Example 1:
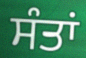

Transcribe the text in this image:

ਸੰਤਾਂ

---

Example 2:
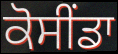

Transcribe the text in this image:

ਕੋਸੀਂਡਾ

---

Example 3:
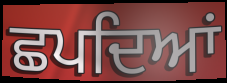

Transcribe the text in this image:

ਛਪਦਿਆਂ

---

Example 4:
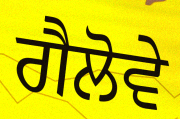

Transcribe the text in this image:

ਗੈਲੋਵੇ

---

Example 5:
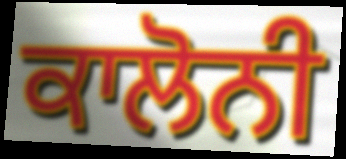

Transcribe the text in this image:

ਕਾਲੋਨੀ